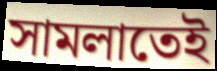
সামলাতেই